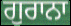
ਗੁਰਾਨਾ